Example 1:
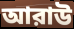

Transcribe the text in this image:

আরাউ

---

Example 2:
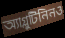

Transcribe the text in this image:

অ্যাগ্লুটিনিনও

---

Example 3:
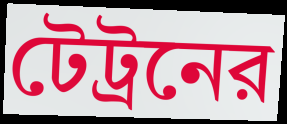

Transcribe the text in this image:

টেট্রনের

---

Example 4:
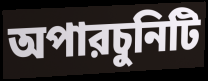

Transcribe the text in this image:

অপারচুনিটি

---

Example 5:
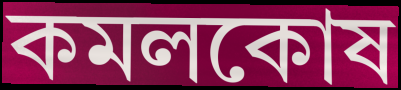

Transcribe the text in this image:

কমলকোষ